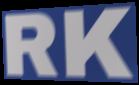
RK